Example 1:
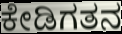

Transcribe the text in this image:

ಕೇಡಿಗತನ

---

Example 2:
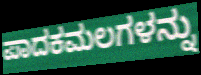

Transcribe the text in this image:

ಪಾದಕಮಲಗಳನ್ನು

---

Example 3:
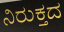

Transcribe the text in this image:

ನಿರುಕ್ತದ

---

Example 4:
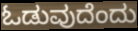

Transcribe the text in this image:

ಓಡುವುದೆಂದು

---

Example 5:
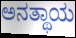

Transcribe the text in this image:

ಅನತ್ಥಾಯ